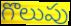
గొలుపు